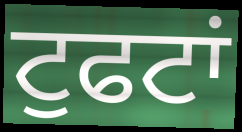
ਟੁਫਟਾਂ